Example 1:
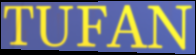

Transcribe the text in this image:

TUFAN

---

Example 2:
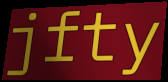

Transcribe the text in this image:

jfty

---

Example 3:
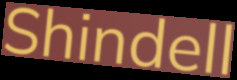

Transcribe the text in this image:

Shindell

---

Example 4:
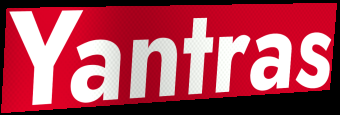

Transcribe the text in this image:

Yantras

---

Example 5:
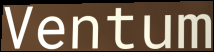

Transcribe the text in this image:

Ventum